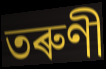
তৰুণী